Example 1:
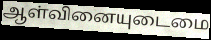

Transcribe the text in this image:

ஆள்வினையுடைமை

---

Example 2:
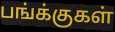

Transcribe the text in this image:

பங்க்குகள்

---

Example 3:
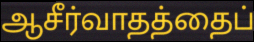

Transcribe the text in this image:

ஆசீர்வாதத்தைப்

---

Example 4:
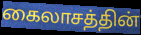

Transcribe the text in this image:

கைலாசத்தின்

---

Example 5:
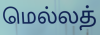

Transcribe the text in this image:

மெல்லத்